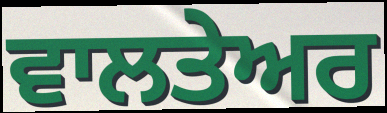
ਵਾਲਤੇਅਰ